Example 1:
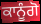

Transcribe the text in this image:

ਕਾਨੂੰਗੋ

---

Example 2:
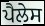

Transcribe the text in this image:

ਪੈਲੇਸ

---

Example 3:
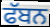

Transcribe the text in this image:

ਫੱਬਨ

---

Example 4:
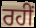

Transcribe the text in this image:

ਰਹੀਂ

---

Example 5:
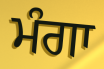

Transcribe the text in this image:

ਮੰਗਾ